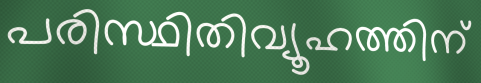
പരിസ്ഥിതിവ്യൂഹത്തിന്